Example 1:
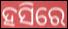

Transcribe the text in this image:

ହସିରେ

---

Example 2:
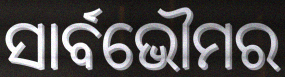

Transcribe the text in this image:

ସାର୍ବଭୌମର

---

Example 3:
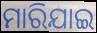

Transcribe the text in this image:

ମାରିଯାଇ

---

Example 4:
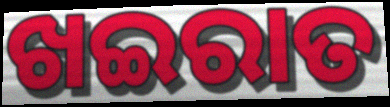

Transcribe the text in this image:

ଖଇରାତ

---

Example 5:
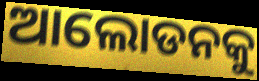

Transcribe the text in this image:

ଆଲୋଡନକୁ